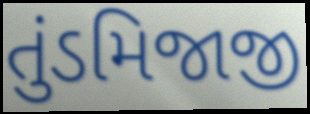
તુંડમિજાજી